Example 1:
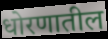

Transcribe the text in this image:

धोरणातील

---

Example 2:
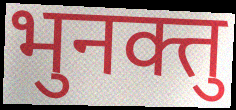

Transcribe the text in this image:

भुनक्तु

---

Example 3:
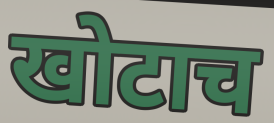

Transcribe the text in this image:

खोटाच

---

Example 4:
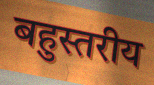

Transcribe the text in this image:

बहुस्तरीय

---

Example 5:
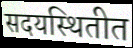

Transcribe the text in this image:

सदयस्थितीत